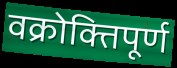
वक्रोक्तिपूर्ण